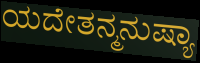
ಯದೇತನ್ಮನುಷ್ಯಾ